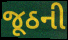
જૂઠની